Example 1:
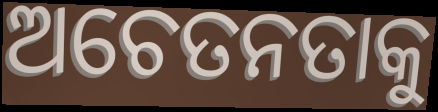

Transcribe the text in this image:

ଅଚେତନତାକୁ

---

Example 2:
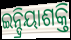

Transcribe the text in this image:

ଇନ୍ଦ୍ରିୟାଶକ୍ତି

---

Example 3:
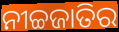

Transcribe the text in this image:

ନୀଚ୍ଚଜାତିର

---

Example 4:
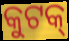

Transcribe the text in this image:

କୁଟକ୍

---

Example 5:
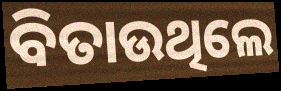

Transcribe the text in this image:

ବିତାଉଥିଲେ